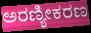
ಅರಣ್ಯೀಕರಣ